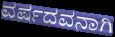
ವರ್ಷದವನಾಗಿ